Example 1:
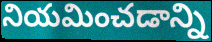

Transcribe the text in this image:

నియమించడాన్ని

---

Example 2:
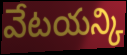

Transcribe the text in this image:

వేటయన్కి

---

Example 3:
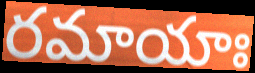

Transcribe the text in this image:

రమాయాః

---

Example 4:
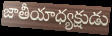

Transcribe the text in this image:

జాతీయాధ్యక్షుడు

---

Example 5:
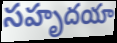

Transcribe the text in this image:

సహృదయా